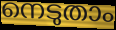
നെടുതാം